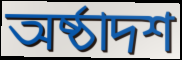
অষ্ঠাদশ